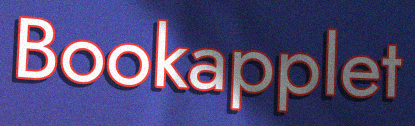
Bookapplet